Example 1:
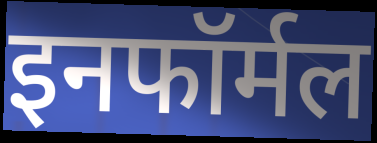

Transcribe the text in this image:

इनफॉर्मल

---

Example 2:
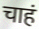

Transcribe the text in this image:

चाहं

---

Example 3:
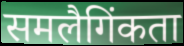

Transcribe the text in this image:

समलैगिंकता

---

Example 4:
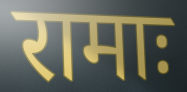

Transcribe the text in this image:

रामाः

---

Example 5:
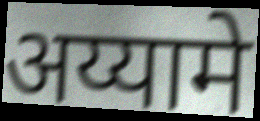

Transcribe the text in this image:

अय्यामे